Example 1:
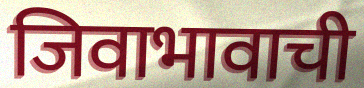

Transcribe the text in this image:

जिवाभावाची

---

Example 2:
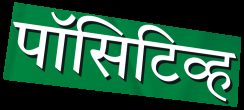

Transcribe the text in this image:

पॉसिटिव्ह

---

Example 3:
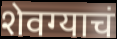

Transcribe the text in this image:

शेवग्याचं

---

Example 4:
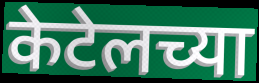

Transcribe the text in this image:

केटेलच्या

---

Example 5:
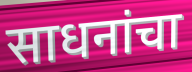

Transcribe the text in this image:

साधनांचा